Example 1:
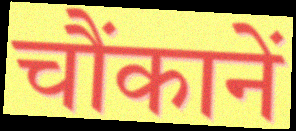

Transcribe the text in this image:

चौंकानें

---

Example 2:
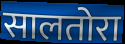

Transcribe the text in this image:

सालतोरा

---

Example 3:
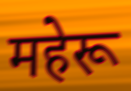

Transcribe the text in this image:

महेरू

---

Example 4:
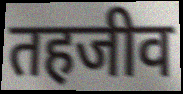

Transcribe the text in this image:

तहजीव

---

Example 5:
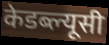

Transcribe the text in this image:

केडब्ल्यूसी